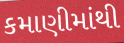
કમાણીમાંથી